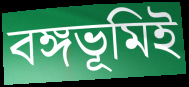
বঙ্গভূমিই